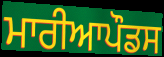
ਮਾਰੀਆਪੌਡਸ